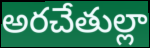
అరచేతుల్లా